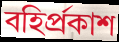
বহিৰ্প্ৰকাশ